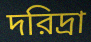
দরিদ্রা